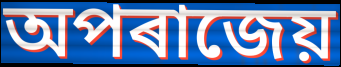
অপৰাজেয়